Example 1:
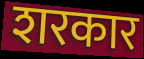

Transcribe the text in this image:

शरकार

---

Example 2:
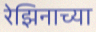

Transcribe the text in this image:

रेझिनाच्या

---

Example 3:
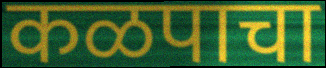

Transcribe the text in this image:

कळपाचा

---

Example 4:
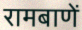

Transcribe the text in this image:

रामबाणें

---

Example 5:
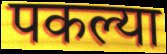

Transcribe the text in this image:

पकल्या